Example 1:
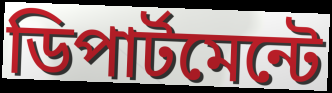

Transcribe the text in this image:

ডিপার্টমেন্টে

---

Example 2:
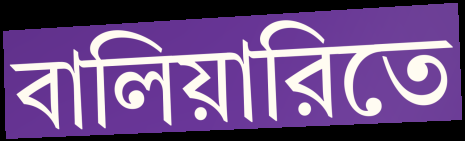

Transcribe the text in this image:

বালিয়ারিতে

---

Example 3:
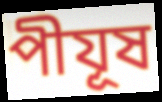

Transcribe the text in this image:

পীযূষ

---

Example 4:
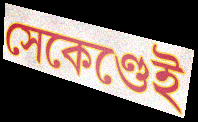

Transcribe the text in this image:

সেকেণ্ডেই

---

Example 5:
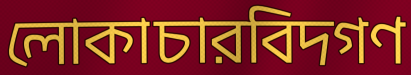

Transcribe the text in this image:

লোকাচারবিদগণ